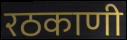
रठकाणी